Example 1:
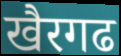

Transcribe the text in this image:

खैरगढ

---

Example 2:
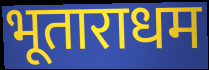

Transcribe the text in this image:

भूताराधम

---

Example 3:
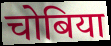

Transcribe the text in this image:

चोबिया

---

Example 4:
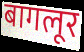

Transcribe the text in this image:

बागलूर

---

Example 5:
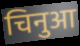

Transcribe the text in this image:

चिनुआ